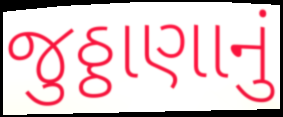
જુઠ્ઠાણાનું